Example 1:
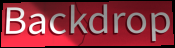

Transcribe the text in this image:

Backdrop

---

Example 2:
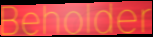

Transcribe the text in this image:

Beholder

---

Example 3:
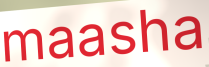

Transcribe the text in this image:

maasha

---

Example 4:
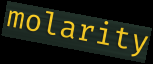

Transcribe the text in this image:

molarity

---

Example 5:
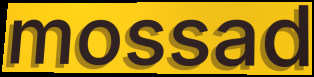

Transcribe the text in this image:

mossad